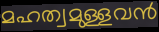
മഹത്വമുള്ളവൻ